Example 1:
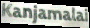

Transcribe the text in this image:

Kanjamalai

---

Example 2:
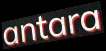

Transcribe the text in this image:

antara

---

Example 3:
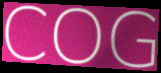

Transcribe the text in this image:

COG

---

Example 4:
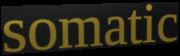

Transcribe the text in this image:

somatic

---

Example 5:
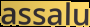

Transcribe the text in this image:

assalu